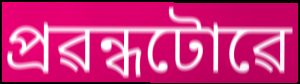
প্ৰৱন্ধটোৱে